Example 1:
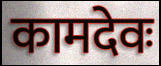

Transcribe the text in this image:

कामदेवः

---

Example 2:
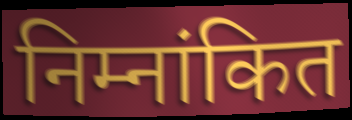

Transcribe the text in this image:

निम्नांकित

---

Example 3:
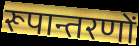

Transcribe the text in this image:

रूपान्तरणों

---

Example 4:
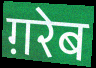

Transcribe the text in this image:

ग़रेब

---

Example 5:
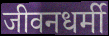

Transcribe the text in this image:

जीवनधर्मी